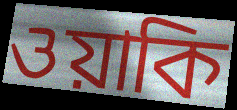
ওয়াকি